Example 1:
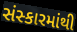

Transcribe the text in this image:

સંસ્કારમાંથી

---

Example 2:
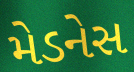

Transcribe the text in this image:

મેડનેસ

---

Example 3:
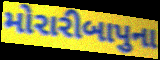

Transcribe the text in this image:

મોરારીબાપુના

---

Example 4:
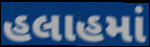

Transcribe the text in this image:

હલાહમાં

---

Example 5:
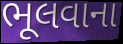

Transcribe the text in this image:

ભૂલવાના